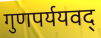
गुणपर्ययवद्